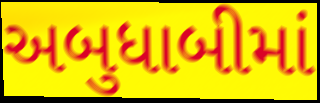
અબુધાબીમાં